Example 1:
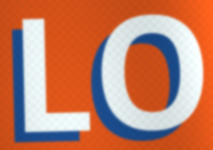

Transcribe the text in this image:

LO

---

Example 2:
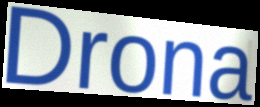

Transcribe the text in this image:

Drona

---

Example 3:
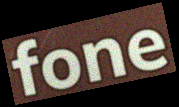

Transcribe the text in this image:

fone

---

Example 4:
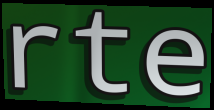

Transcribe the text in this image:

rte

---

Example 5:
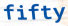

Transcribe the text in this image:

fifty